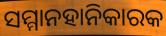
ସମ୍ମାନହାନିକାରକ